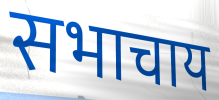
सभाचाय